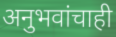
अनुभवांचाही